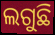
ଲଗୁଛି